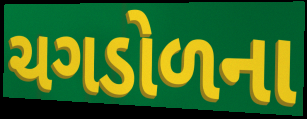
ચગડોળના